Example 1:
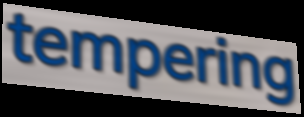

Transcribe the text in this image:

tempering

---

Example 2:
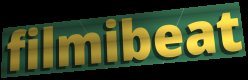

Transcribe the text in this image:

filmibeat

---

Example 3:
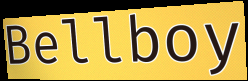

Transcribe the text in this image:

Bellboy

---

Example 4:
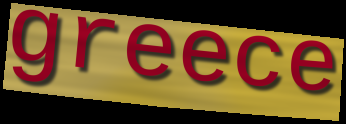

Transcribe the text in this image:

greece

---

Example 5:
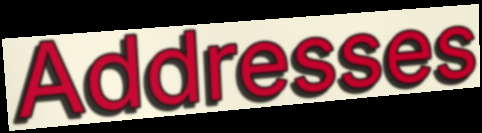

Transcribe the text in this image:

Addresses